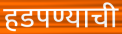
हडपण्याची